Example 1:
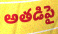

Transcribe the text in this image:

అతడిపై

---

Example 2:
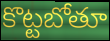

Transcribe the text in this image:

కొట్టబోతూ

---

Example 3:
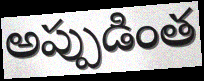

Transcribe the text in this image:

అప్పుడింత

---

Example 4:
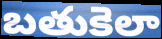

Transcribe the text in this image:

బతుకెలా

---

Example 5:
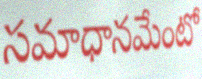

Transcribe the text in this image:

సమాధానమేంటో